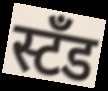
स्टँड